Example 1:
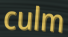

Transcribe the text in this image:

culm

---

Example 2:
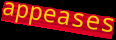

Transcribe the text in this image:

appeases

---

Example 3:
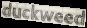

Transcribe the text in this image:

duckweed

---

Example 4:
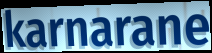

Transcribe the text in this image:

karnarane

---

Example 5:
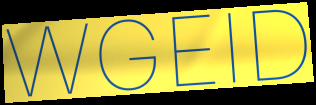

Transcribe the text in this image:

WGEID